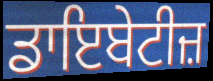
ਡਾਇਬੇਟੀਜ਼